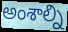
అంశాల్ని